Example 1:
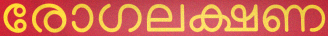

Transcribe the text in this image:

രോഗലക്ഷണ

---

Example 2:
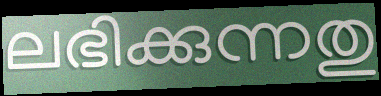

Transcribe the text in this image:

ലഭിക്കുന്നതു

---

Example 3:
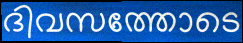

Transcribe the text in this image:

ദിവസത്തോടെ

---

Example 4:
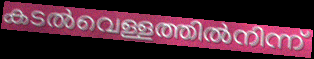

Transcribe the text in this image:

കടൽവെള്ളത്തിൽനിന്ന്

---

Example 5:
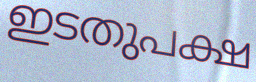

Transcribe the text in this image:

ഇടതുപക്ഷ